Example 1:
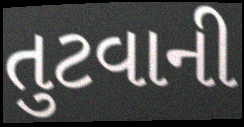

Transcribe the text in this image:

તુટવાની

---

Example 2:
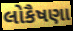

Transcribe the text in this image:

લોકૈષણા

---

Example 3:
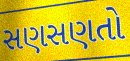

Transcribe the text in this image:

સણસણતો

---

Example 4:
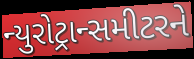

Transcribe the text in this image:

ન્યુરોટ્રાન્સમીટરને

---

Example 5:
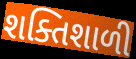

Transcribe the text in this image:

શક્તિશાળી